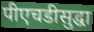
पीएचडीसुद्धा